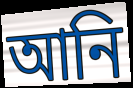
আনি